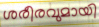
ശരീരവുമായി